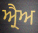
ਅ੍ਰੈਅ